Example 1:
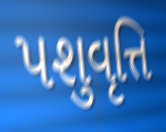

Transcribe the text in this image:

પશુવૃત્તિ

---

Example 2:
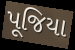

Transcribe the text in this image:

પૂજિયા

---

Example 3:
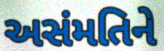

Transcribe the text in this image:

અસંમતિને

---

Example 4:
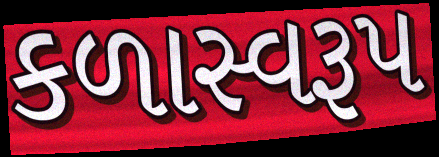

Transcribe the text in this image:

કળાસ્વરૂપ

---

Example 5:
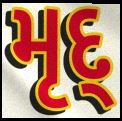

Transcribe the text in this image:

મૃદ્